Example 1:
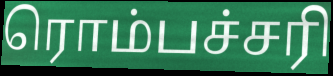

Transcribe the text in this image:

ரொம்பச்சரி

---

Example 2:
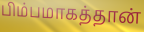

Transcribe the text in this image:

பிம்பமாகத்தான்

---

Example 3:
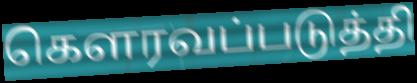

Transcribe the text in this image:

கெளரவப்படுத்தி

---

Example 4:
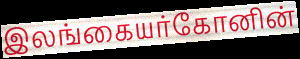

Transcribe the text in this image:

இலங்கையர்கோனின்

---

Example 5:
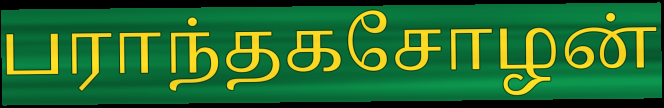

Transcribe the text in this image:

பராந்தகசோழன்